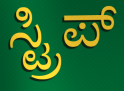
ಸ್ಟ್ರಿಪ್